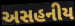
અસહનીય